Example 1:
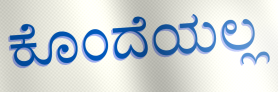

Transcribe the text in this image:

ಕೊಂದೆಯಲ್ಲ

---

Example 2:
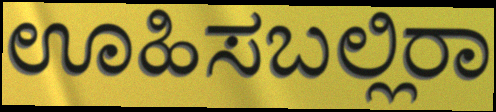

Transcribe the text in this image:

ಊಹಿಸಬಲ್ಲಿರಾ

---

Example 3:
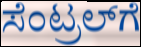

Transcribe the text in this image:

ಸೆಂಟ್ರಲ್‌ಗೆ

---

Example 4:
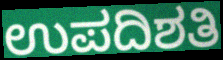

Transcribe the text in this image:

ಉಪದಿಶತಿ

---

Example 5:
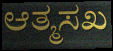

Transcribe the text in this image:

ಆತ್ಮಸಖ